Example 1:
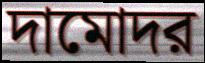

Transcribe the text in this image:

দামোদর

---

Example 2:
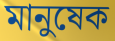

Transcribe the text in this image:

মানুষেক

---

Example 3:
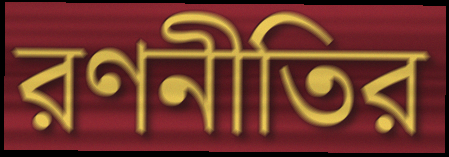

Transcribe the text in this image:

রণনীতির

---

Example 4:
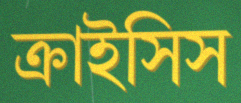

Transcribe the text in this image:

ক্রাইসিস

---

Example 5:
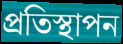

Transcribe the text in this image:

প্রতিস্থাপন